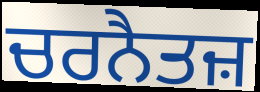
ਚਰਨੈਤਜ਼